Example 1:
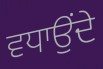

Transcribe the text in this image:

ਵਧਾਉਂਦੇ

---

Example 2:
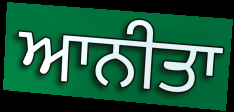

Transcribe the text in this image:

ਆਨੀਤਾ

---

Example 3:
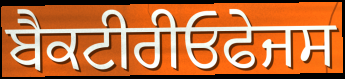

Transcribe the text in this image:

ਬੈਕਟੀਰੀਓਫੇਜਸ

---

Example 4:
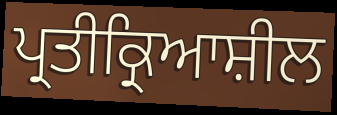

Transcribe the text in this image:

ਪ੍ਰਤੀਕ੍ਰਿਆਸ਼ੀਲ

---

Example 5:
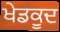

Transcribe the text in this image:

ਖੇਡਕੂਦ